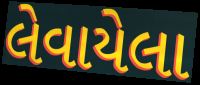
લેવાયેલા